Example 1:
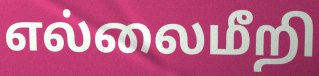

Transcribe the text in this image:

எல்லைமீறி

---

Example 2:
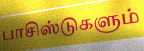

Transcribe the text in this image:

பாசிஸ்டுகளும்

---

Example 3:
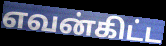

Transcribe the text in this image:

எவன்கிட்ட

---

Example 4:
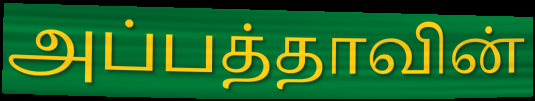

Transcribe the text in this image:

அப்பத்தாவின்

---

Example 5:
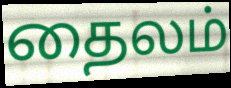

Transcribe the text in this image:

தைலம்